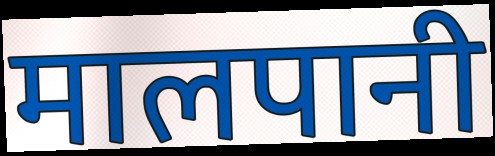
मालपानी